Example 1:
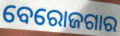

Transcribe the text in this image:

ବେରୋଜଗାର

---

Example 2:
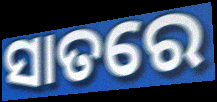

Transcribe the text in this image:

ସାତରେ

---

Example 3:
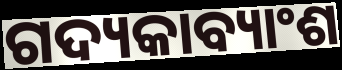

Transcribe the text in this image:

ଗଦ୍ୟକାବ୍ୟାଂଶ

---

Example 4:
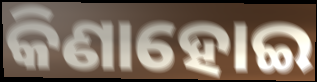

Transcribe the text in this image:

କିଣାହୋଇ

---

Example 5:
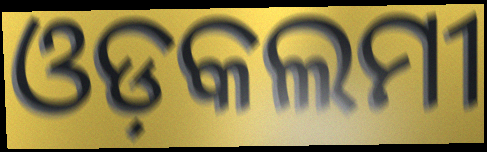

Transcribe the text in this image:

ଓଡ଼କଲମୀ